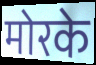
मोरके